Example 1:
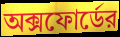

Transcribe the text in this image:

অক্সফোর্ডের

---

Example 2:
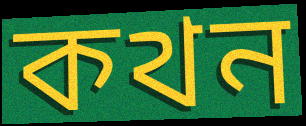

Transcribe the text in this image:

কথন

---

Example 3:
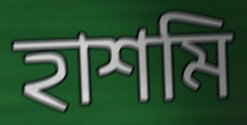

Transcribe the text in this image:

হাশমি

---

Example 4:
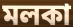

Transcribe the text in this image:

মলকা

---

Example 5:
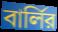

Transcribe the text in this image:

বার্লির